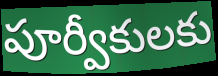
పూర్వీకులకు